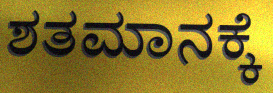
ಶತಮಾನಕ್ಕೆ